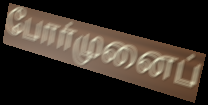
போர்முனைப்